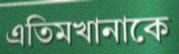
এতিমখানাকে